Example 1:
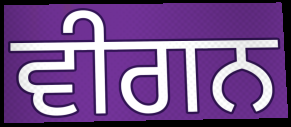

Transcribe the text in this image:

ਵੀਗਨ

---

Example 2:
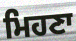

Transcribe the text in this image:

ਮਿਹਣਾ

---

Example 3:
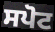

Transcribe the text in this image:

ਸਪੋਟ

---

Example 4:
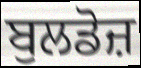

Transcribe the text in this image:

ਬੁਲਡੋਜ਼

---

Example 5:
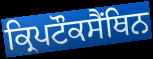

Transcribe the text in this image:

ਕ੍ਰਿਪਟੌਕਸੈਂਥਿਨ